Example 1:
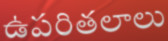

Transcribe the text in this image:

ఉపరితలాలు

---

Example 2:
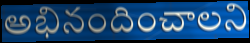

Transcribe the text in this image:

అభినందించాలని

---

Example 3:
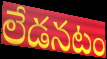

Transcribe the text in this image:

లేడనటం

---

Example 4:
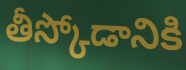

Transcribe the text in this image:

తీస్కోడానికి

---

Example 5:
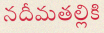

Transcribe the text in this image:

నదీమతల్లికి